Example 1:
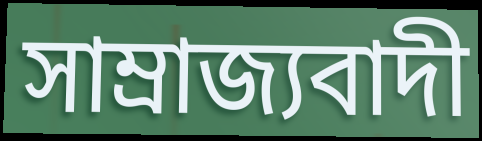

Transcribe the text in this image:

সাম্রাজ্যবাদী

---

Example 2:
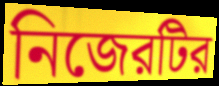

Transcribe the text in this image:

নিজেরটির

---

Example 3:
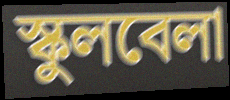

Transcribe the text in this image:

স্কুলবেলা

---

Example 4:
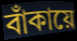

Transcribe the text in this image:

বাঁকায়ে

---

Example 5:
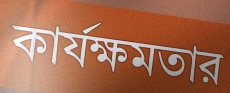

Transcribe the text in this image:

কার্যক্ষমতার